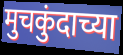
मुचकुंदाच्या